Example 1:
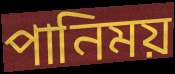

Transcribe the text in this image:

পানিময়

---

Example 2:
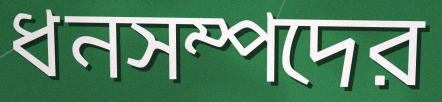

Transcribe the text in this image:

ধনসম্পদের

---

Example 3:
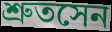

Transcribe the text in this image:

শ্রুতসেন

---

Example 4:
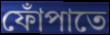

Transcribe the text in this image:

ফোঁপাতে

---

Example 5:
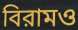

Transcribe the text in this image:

বিরামও